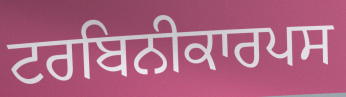
ਟਰਬਿਨੀਕਾਰਪਸ